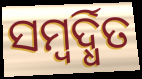
ସମ୍ବର୍ଦ୍ଧିତ